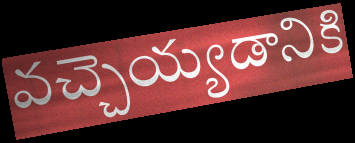
వచ్చెయ్యడానికి